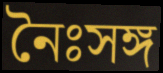
নৈঃসঙ্গ